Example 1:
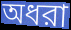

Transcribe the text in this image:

অধরা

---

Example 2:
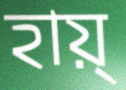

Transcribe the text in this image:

হায়্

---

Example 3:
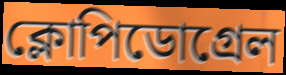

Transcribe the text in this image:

ক্লোপিডোগ্রেল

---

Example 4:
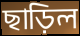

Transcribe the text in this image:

ছাড়িল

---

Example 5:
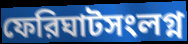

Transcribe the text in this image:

ফেরিঘাটসংলগ্ন